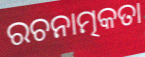
ରଚନାତ୍ମକତା